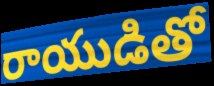
రాయుడితో